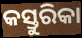
କସ୍ତୁରିକା